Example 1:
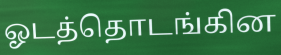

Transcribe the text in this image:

ஓடத்தொடங்கின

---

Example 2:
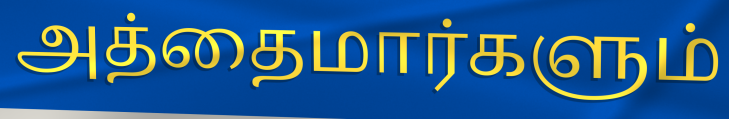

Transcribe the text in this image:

அத்தைமார்களும்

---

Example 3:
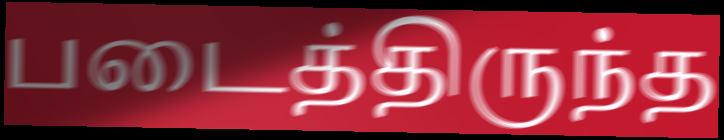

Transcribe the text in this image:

படைத்திருந்த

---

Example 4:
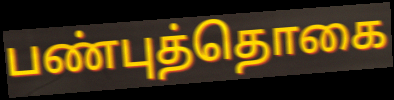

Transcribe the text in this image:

பண்புத்தொகை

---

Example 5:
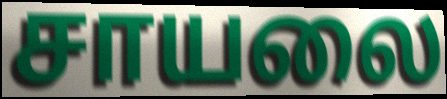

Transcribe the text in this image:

சாயலை